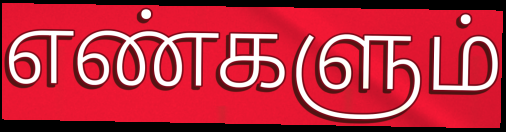
எண்களும்